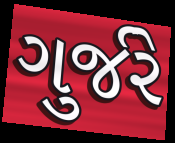
ગુર્જરે